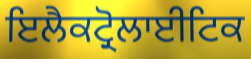
ਇਲੈਕਟ੍ਰੋਲਾਈਟਿਕ